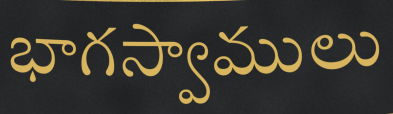
భాగస్వాములు